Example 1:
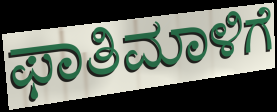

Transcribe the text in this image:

ಫಾತಿಮಾಳಿಗೆ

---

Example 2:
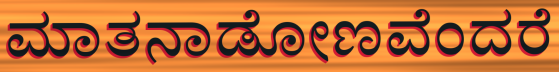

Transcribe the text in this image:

ಮಾತನಾಡೋಣವೆಂದರೆ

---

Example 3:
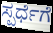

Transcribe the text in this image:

ಸ್ಪರ್ಧೆಗೆ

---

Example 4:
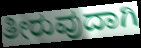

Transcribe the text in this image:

ತೀರುವುದಾಗಿ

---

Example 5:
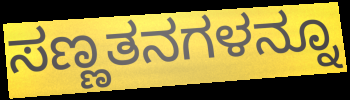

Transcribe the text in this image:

ಸಣ್ಣತನಗಳನ್ನೂ